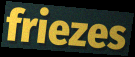
friezes